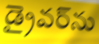
డ్రైవర్‌ను